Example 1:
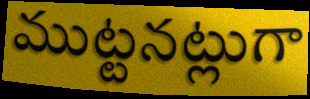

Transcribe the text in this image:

ముట్టనట్లుగా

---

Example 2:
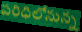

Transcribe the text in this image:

పరిధిలోనున్న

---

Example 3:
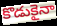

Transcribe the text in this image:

కొడుకైనా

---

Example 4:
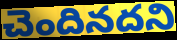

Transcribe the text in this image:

చెందినదని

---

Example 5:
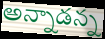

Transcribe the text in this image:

అన్నాడన్న